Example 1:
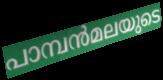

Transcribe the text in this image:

പാമ്പൻമലയുടെ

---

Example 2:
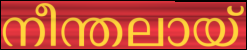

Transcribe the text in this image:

നീന്തലായ്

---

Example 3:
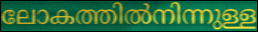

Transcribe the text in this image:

ലോകത്തിൽനിന്നുള്ള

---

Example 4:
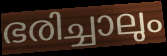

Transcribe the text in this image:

ഭരിച്ചാലും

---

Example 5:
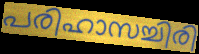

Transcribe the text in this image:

പരിഹാസച്ചിരി